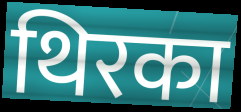
थिरका